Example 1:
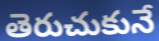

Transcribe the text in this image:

తెరుచుకునే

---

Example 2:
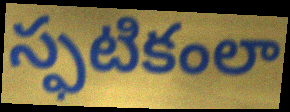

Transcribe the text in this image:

స్ఫటికంలా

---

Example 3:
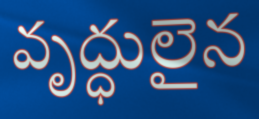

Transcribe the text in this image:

వృద్ధులైన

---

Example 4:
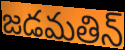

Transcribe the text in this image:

జడమతిన్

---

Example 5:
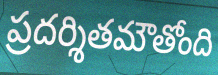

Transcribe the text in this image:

ప్రదర్శితమౌతోంది